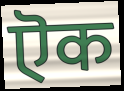
ऎक